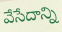
వేసేదాన్ని